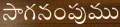
సాగనంపుము